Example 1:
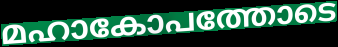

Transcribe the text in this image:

മഹാകോപത്തോടെ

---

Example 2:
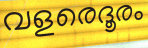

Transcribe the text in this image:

വളരെദൂരം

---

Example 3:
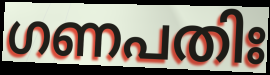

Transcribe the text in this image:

ഗണപതിഃ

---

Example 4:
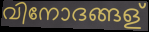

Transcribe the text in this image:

വിനോദങ്ങള്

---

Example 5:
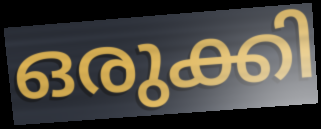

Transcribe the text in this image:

ഒരുക്കി